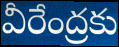
వీరేంద్రకు